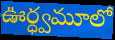
ఊర్ధ్వమూలో